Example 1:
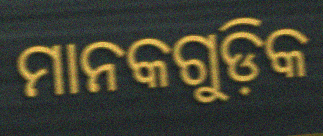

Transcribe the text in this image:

ମାନକଗୁଡ଼ିକ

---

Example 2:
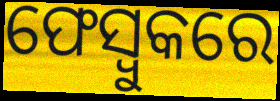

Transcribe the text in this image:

ଫେସ୍ବୁକରେ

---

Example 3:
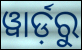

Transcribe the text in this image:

ୱାର୍ଡ଼ରୁ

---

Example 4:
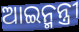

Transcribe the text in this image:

ଆଇନ୍ମନ୍ତ୍ରୀ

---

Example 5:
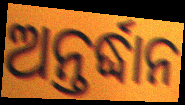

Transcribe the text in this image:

ଅନ୍ତର୍ଦ୍ଧାନ